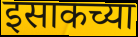
इसाकच्या